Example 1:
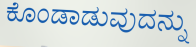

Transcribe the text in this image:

ಕೊಂಡಾಡುವುದನ್ನು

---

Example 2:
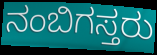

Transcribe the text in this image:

ನಂಬಿಗಸ್ತರು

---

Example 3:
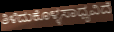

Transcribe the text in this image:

ತಿಳಿದುಕೊಳ್ಳಸಾಧ್ಯವಿದೆ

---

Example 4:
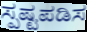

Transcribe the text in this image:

ಸ್ಪಷ್ಟಪಡಿಸ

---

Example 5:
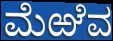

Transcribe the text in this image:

ಮೆಱೆವ